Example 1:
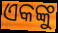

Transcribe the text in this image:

ଏକଙ୍କୁ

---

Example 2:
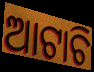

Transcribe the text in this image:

ଆଟାଚି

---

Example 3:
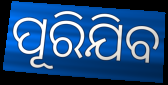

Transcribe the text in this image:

ପୂରିଯିବ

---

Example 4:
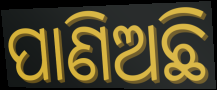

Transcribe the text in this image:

ପାଣିଅଛି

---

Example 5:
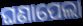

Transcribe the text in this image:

ଘଣାପେଲା